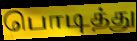
பொடித்து